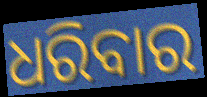
ଧରିବାର